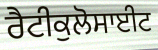
ਰੈਟੀਕੁਲੋਸਾਈਟ